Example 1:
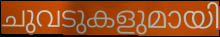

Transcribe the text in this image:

ചുവടുകളുമായി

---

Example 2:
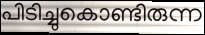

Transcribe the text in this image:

പിടിച്ചുകൊണ്ടിരുന്ന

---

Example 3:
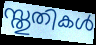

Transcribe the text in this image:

സ്തുതികൾ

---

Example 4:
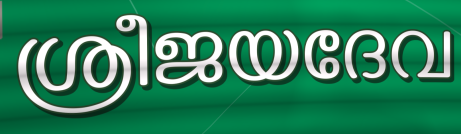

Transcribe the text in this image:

ശ്രീജയദേവ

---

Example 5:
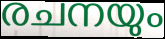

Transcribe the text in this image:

രചനയും